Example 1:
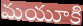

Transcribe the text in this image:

మయూకి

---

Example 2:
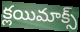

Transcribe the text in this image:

క్లయిమాక్స్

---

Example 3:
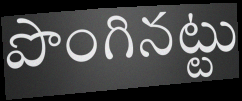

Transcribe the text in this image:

పొంగినట్టు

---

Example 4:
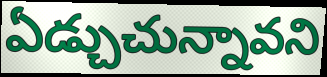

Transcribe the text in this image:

ఏడ్చుచున్నావని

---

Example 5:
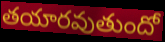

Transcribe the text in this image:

తయారవుతుందో